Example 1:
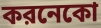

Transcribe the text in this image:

করনেকো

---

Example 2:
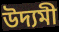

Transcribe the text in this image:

উদ্যমী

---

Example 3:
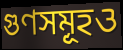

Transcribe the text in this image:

গুণসমূহও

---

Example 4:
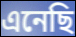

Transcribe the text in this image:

এনেছি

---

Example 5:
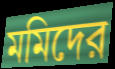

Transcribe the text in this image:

মমিদের